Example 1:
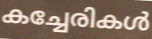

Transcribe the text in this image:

കച്ചേരികൾ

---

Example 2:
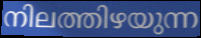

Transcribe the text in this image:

നിലത്തിഴയുന്ന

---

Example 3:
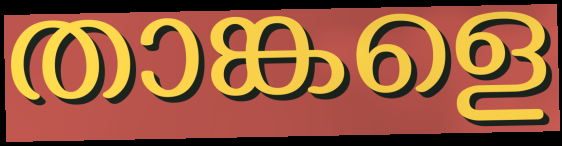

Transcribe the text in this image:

താങ്കളെ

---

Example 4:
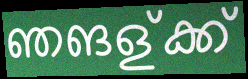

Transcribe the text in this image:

ഞങള്ക്ക്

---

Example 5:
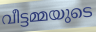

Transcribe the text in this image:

വീട്ടമ്മയുടെ